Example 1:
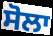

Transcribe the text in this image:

ਸੋਲਾ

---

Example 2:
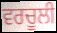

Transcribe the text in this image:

ਵਰਚੂਲੀ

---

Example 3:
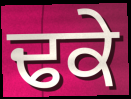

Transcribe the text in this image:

ਢਕੇ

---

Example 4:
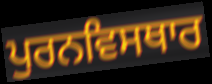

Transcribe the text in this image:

ਪੁਰਨਵਿਸਥਾਰ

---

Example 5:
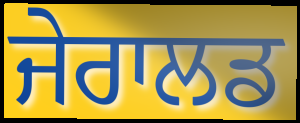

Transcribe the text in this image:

ਜੇਰਾਲਡ